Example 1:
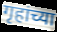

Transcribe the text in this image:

गृहांच्या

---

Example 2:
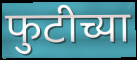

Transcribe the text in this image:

फुटीच्या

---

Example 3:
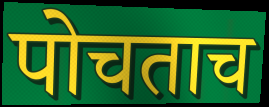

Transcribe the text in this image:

पोचताच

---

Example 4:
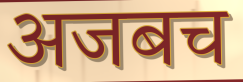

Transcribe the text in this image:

अजबच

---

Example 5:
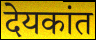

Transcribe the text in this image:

देयकांत